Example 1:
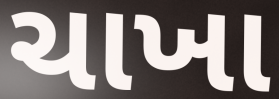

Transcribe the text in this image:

ચાખા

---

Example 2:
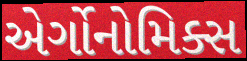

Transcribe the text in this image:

એર્ગોનોમિક્સ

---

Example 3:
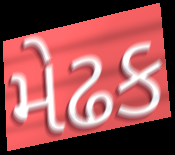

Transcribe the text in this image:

મેઢક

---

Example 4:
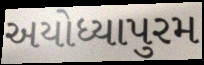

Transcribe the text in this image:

અયોધ્યાપુરમ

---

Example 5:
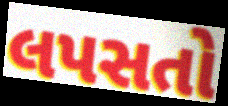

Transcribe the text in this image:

લપસતો